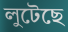
লুটেছে